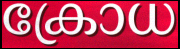
ക്രോധ